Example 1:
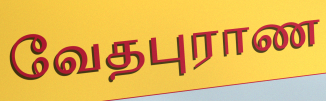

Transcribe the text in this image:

வேதபுராண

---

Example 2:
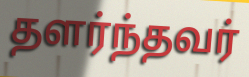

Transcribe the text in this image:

தளர்ந்தவர்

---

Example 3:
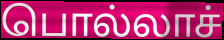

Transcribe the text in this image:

பொல்லாச்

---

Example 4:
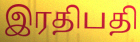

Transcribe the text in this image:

இரதிபதி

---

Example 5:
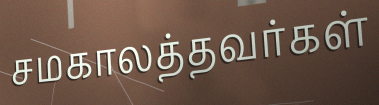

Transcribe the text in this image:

சமகாலத்தவர்கள்